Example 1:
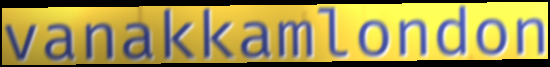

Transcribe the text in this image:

vanakkamlondon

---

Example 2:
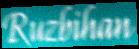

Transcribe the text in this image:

Ruzbihan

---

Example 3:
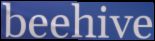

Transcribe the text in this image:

beehive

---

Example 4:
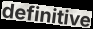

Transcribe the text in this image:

definitive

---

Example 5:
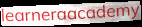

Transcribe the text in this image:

learneraacademy